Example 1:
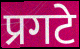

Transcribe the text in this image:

प्रगटे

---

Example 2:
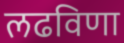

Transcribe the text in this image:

लढविणा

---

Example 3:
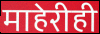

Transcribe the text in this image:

माहेरीही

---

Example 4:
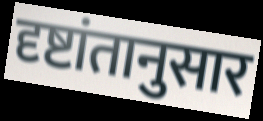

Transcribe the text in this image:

दृष्टांतानुसार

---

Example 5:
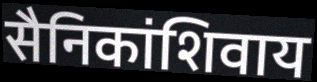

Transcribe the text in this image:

सैनिकांशिवाय